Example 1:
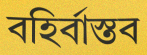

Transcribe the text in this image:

বহির্বাস্তব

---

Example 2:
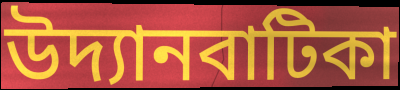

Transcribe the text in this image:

উদ্যানবাটিকা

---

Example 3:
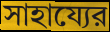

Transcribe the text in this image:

সাহায্য়ের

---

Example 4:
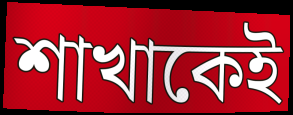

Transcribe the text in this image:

শাখাকেই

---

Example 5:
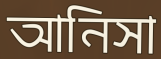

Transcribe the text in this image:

আনিসা